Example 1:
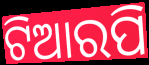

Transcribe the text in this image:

ଟିଆରପି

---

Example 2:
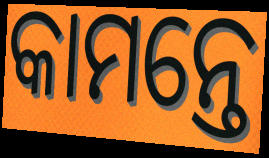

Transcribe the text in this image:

କାମନ୍ତେ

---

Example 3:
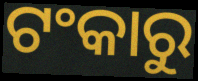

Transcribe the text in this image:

ଟଂକାରୁ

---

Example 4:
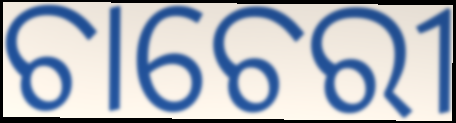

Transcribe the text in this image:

ଚାଚେରୀ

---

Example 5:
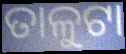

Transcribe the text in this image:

ତାଳୁଟା